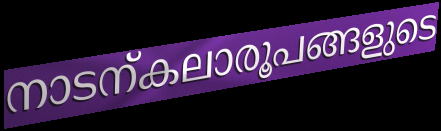
നാടന്കലാരൂപങ്ങളുടെ